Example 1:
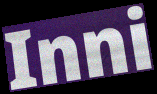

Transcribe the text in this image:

Inni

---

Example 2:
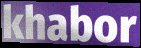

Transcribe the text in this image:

khabor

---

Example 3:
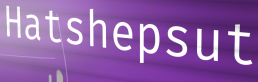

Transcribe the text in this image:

Hatshepsut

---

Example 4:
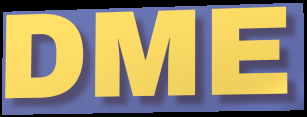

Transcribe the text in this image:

DME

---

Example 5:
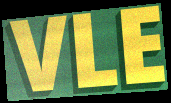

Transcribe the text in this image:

VLE